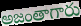
అజంతాగారు